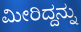
ಮೀರಿದ್ದನ್ನು